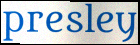
presley